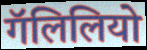
गॅलिलियो